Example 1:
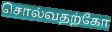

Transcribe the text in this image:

சொல்வதற்கோ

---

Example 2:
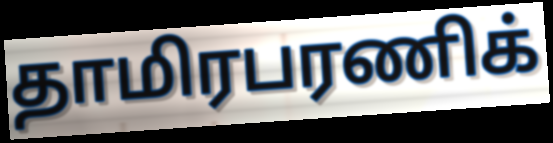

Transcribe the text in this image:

தாமிரபரணிக்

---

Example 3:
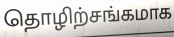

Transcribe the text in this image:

தொழிற்சங்கமாக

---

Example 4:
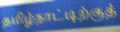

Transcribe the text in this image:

தமிழ்நாட்டிற்குத்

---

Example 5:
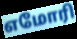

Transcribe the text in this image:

எமோரி